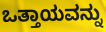
ಒತ್ತಾಯವನ್ನು